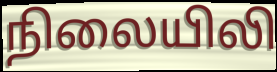
நிலையிலி